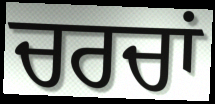
ਚਰਚਾਂ